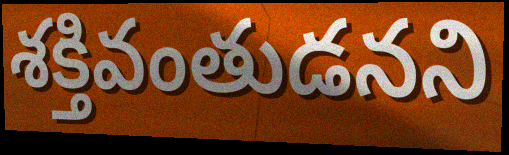
శక్తివంతుడనని